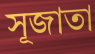
সূজাতা